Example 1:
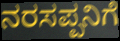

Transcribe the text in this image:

ನರಸಪ್ಪನಿಗೆ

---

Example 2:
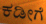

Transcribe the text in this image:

ಕಡೀಗೆ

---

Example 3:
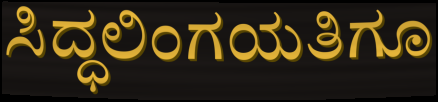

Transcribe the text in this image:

ಸಿದ್ಧಲಿಂಗಯತಿಗೂ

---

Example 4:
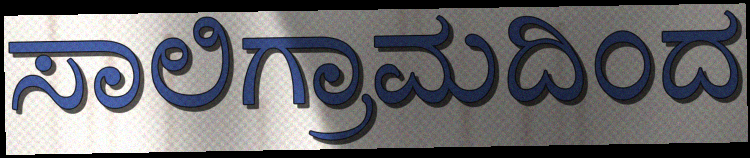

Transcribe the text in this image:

ಸಾಲಿಗ್ರಾಮದಿಂದ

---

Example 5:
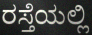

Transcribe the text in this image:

ರಸ್ತೆಯಲ್ಲಿ